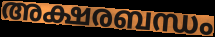
അക്ഷരബന്ധം